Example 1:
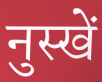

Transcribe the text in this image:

नुस्खें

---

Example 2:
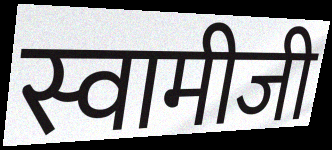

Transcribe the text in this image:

स्‍वामीजी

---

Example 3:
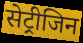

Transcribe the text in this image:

सेट्रीजिन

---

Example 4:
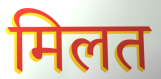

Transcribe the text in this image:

मिलत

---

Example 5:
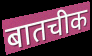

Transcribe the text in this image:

बातचीक